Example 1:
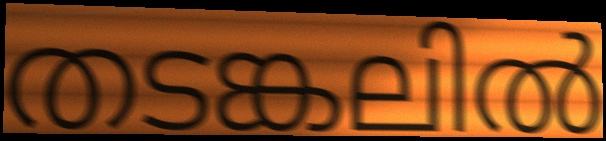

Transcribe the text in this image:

തടങ്കലിൽ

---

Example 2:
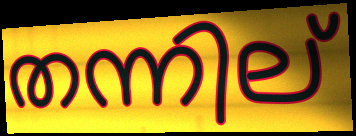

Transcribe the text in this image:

തന്നില്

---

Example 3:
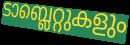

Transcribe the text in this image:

ടാബ്ലെറ്റുകളും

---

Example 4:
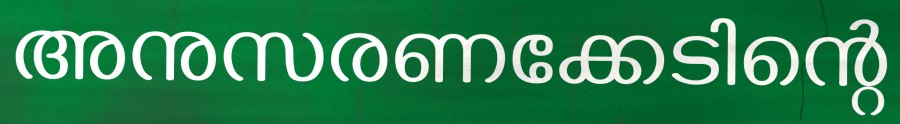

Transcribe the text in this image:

അനുസരണക്കേടിന്റെ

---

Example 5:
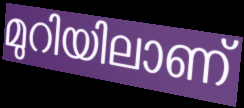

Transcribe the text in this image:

മുറിയിലാണ്